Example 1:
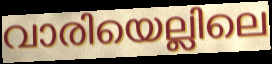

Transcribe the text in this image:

വാരിയെല്ലിലെ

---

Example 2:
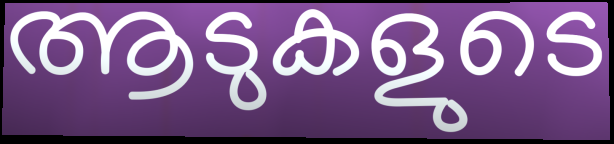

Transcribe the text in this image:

ആടുകളുടെ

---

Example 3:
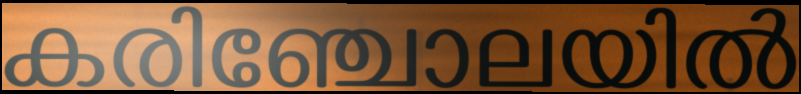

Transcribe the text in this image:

കരിഞ്ചോലയിൽ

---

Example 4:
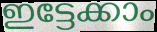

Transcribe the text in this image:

ഇട്ടേക്കാം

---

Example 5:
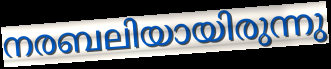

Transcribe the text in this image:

നരബലിയായിരുന്നു